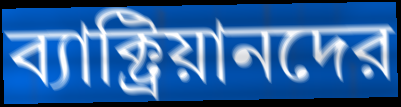
ব্যাক্ট্রিয়ানদের